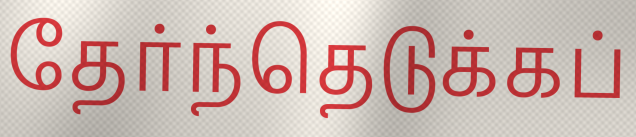
தேர்ந்தெடுக்கப்